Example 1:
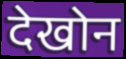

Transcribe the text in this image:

देखोन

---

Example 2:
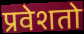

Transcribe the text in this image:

प्रवेशतो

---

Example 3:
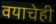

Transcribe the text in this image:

वयाचेही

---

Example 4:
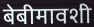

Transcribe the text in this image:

बेबीमावशी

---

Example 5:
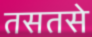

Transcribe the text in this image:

तसतसे